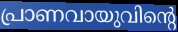
പ്രാണവായുവിന്റെ